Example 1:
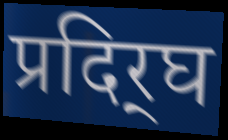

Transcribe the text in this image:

प्रदिर्घ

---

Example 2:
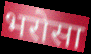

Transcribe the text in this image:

भरोसा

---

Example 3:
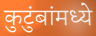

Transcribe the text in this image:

कुटुंबांमध्ये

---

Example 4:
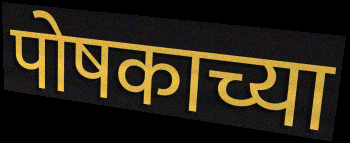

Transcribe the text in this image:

पोषकाच्या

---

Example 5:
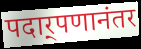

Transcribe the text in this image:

पदार्पणानंतर